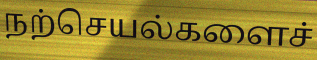
நற்செயல்களைச்